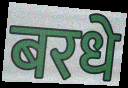
बरधे